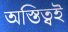
অস্তিত্বই